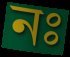
নঃ